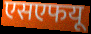
एसएफयू